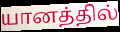
யானத்தில்